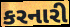
કરનારી